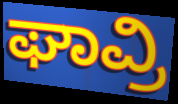
ಘಾವ್ರಿ